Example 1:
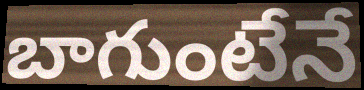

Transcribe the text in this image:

బాగుంటేనే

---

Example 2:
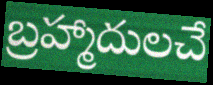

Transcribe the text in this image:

బ్రహ్మాదులచే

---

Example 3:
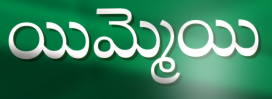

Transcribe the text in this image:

యిమ్మెయి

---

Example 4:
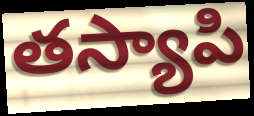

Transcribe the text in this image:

తస్యాపి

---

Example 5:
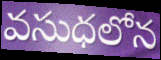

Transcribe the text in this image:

వసుధలోన